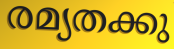
രമ്യതക്കു